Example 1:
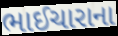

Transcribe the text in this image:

ભાઈચારાના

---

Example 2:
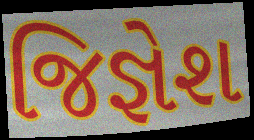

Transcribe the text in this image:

જિજ્ઞેશ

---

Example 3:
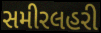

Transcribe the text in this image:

સમીરલહરી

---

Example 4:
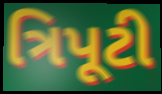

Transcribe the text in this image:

ત્રિપૂટી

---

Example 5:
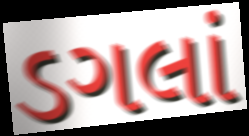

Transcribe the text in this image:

ડગલાં